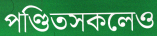
পণ্ডিতসকলেও